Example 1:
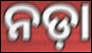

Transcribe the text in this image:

ନଡ଼ା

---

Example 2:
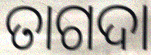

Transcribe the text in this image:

ତାଗଦା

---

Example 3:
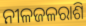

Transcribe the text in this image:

ନୀଳଜଳରାଶି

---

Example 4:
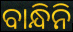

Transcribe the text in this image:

ବାନ୍ଧିନି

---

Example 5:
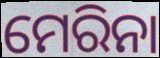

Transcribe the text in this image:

ମେରିନା